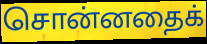
சொன்னதைக்